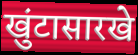
खुंटासारखे